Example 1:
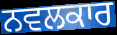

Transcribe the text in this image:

ਨਵਲਕਾਰ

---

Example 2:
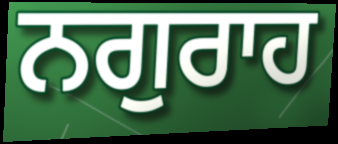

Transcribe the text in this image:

ਨਗੁਰਾਹ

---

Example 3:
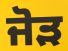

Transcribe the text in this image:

ਜੋੜ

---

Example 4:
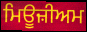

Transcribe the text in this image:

ਮਿਊਜ਼ੀਅਮ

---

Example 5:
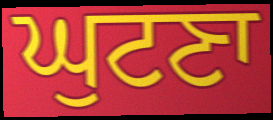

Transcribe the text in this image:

ਘੁਟਣਾ